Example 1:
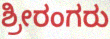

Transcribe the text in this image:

ಶ್ರೀರಂಗರು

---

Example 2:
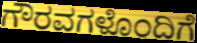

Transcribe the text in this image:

ಗೌರವಗಳೊಂದಿಗೆ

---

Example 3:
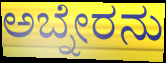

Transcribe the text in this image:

ಅಬ್ನೇರನು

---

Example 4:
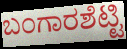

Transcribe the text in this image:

ಬಂಗಾರಶೆಟ್ಟಿ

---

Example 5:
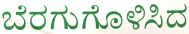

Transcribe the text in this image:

ಬೆರಗುಗೊಳಿಸಿದ